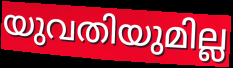
യുവതിയുമില്ല